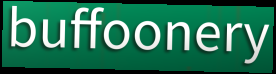
buffoonery